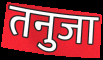
तनुजा